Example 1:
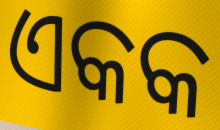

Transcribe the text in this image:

ଏକକ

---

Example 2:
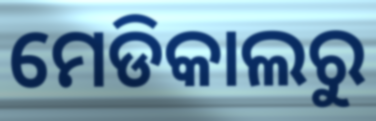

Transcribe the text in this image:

ମେଡିକାଲରୁ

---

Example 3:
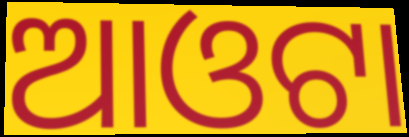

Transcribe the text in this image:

ଆଓଟା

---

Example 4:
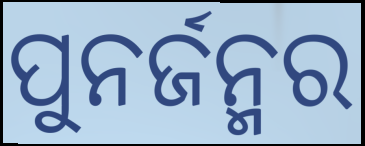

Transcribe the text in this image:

ପୁନର୍ଜନ୍ମର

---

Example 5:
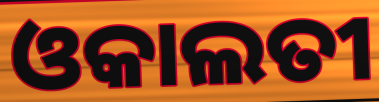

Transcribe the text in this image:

ଓକାଲତୀ